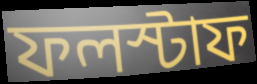
ফলস্টাফ